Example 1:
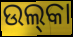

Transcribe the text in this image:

ଉଲ୍‍କା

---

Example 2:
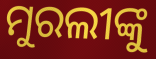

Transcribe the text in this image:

ମୁରଲୀଙ୍କୁ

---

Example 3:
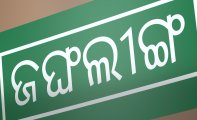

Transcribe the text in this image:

ଜଙ୍ଘଲୀଙ୍ଗ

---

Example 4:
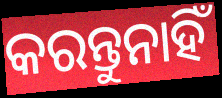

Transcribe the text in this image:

କରନ୍ତୁନାହିଁ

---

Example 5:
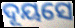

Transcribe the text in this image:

ଦୂୟସେ